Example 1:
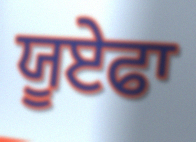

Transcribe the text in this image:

ਯੂਏਫਾ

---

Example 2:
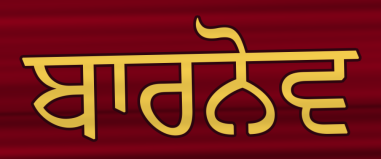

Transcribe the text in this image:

ਬਾਰਨੋਵ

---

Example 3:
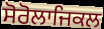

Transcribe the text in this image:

ਸੋਰੋਲਾਜਿਕਲ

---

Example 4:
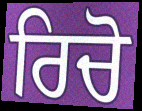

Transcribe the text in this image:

ਰਿਚੋ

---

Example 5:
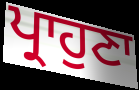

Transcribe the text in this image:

ਪ੍ਰਾਹੁਣਾ